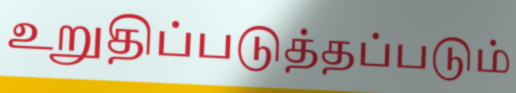
உறுதிப்படுத்தப்படும்